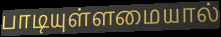
பாடியுள்ளமையால்